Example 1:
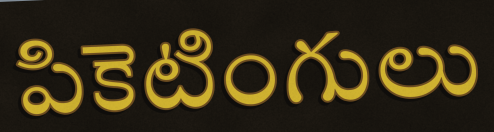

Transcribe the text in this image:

పికెటింగులు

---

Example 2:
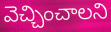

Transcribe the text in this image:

వెచ్చించాలని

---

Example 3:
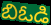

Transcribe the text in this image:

బిఓడి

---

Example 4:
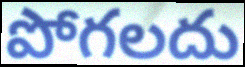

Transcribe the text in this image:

పోగలదు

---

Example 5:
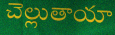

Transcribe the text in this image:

చెల్లుతాయా